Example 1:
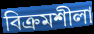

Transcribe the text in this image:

বিক্রমশীলা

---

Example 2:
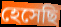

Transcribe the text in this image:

হেসেছি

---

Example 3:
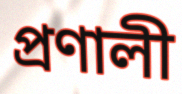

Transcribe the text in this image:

প্রণালী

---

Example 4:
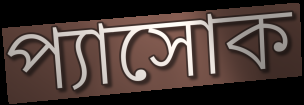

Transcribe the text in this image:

প্যাসোক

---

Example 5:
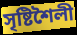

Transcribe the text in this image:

সৃষ্টিশৈলী